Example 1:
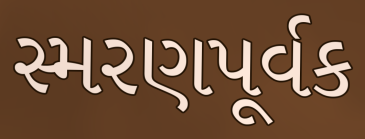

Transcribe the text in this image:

સ્મરણપૂર્વક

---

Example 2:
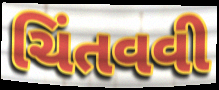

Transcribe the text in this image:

ચિંતવવી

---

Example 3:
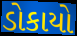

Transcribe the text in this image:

ડોકાયો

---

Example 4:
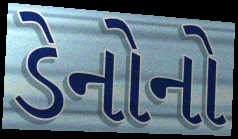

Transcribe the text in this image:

ડેનોનો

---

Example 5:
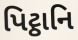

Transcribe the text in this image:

પિટ્ઠાનિ